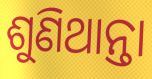
ଶୁଣିଥାନ୍ତା